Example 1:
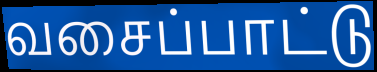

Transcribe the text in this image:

வசைப்பாட்டு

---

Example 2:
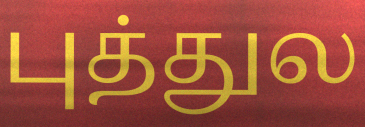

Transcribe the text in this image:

புத்துல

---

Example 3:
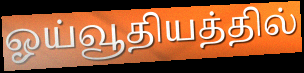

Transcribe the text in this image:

ஓய்வூதியத்தில்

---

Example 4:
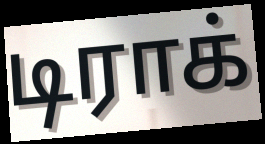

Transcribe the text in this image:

டிராக்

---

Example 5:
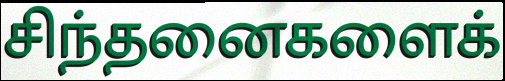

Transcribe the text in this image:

சிந்தனைகளைக்